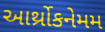
આર્થ્રોકનેમમ